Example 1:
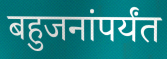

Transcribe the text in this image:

बहुजनांपर्यंत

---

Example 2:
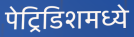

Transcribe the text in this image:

पेट्रिडिशमध्ये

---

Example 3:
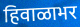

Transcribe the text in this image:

हिवाळाभर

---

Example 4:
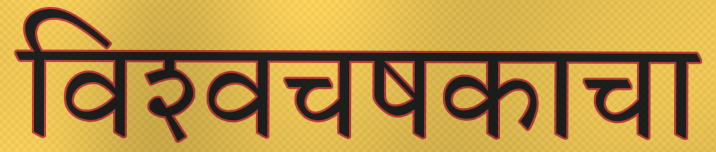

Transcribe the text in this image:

विश्वचषकाचा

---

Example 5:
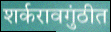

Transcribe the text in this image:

शर्करावगुंठीत